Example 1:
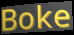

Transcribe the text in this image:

Boke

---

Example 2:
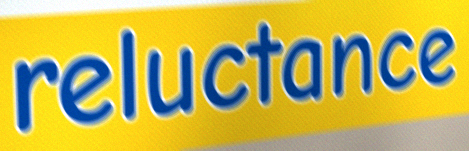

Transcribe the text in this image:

reluctance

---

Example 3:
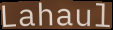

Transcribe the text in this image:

Lahaul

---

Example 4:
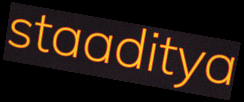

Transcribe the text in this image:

staaditya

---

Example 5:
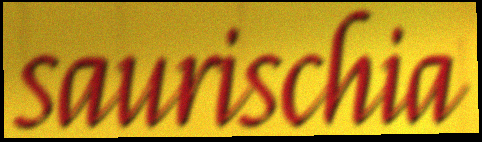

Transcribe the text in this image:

saurischia